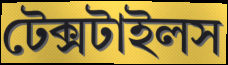
টেক্সটাইলস